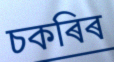
চকৰিৰ